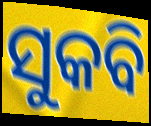
ସୁକବି